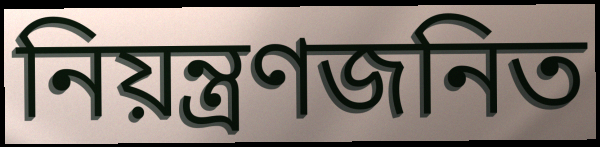
নিয়ন্ত্রণজনিত